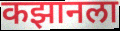
कझानला